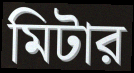
মিটার